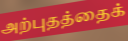
அற்புதத்தைக்